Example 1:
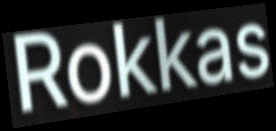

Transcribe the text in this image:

Rokkas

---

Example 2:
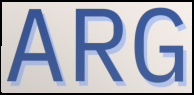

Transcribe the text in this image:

ARG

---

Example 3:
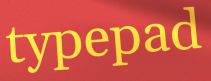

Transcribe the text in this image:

typepad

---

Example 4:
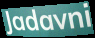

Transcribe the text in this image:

Jadavni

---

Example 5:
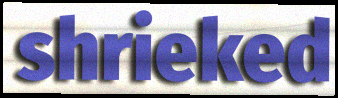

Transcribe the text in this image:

shrieked